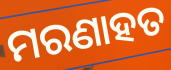
ମରଣାହତ